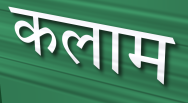
कलाम